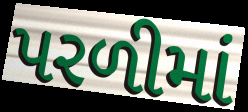
પરળીમાં